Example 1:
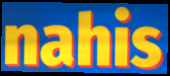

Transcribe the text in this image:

nahis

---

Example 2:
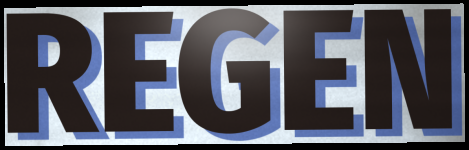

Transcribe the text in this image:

REGEN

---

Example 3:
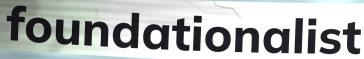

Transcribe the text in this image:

foundationalist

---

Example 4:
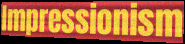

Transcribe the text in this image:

Impressionism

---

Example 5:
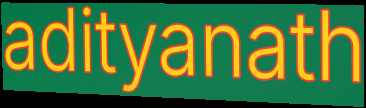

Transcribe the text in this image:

adityanath